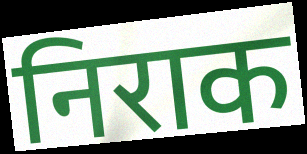
निराक